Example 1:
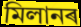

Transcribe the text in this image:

মিলানৰ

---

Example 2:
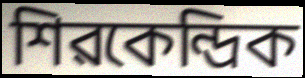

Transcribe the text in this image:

শিৱকেন্দ্ৰিক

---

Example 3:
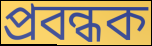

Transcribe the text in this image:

প্ৰবন্ধক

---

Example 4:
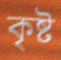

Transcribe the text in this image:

কৃষ্ট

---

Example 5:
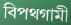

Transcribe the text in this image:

বিপথগামী